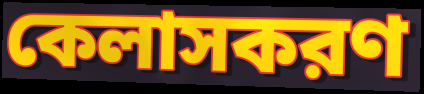
কেলাসকরণ